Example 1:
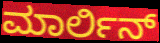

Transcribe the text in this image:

ಮಾರ್ಲಿನ್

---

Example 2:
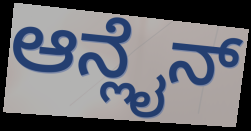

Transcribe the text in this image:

ಆನ್ಲೈನ್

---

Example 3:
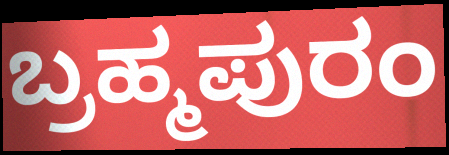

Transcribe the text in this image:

ಬ್ರಹ್ಮಪುರಂ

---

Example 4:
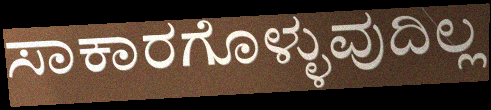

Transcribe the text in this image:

ಸಾಕಾರಗೊಳ್ಳುವುದಿಲ್ಲ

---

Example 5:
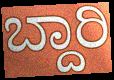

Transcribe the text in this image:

ಬ್ದಾರಿ